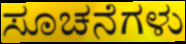
ಸೂಚನೆಗಳು